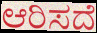
ಆರಿಸದೆ